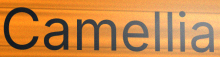
Camellia